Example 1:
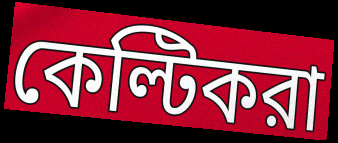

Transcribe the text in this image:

কেল্টিকরা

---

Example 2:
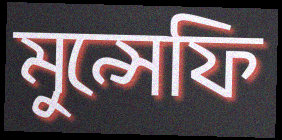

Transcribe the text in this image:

মুন্সেফি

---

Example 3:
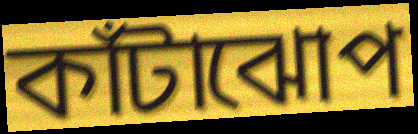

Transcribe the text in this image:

কাঁটাঝোপ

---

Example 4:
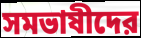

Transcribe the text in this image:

সমভাষীদের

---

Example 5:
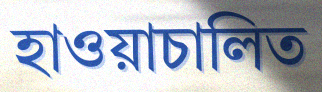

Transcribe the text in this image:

হাওয়াচালিত